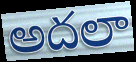
అదలా